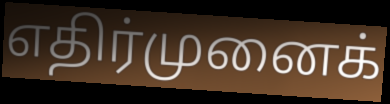
எதிர்முனைக்